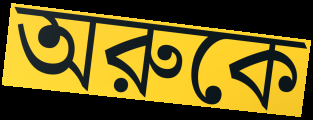
অরুকে